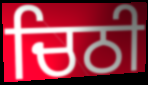
ਚਿਠੀ